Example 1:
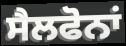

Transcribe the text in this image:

ਸੈਲਫੋਨਾਂ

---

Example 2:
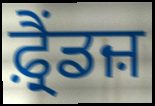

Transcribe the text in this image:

ਫ਼੍ਰੈਂਡਜ਼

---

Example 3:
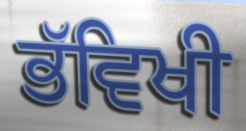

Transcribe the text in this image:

ਭੱਵਿਖੀ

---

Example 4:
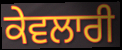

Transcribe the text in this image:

ਕੇਵਲਾਰੀ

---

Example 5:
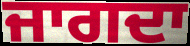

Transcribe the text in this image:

ਜਾਗਦਾ